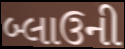
બ્લાઉની